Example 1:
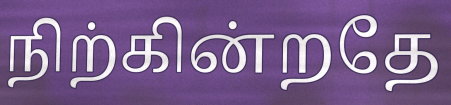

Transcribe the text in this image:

நிற்கின்றதே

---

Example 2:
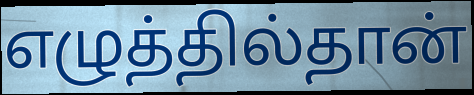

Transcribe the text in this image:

எழுத்தில்தான்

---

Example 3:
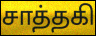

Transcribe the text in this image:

சாத்தகி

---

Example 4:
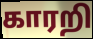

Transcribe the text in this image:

காரறி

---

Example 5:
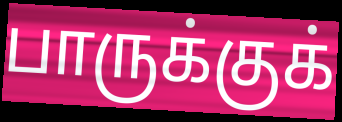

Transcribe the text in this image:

பாருக்குக்